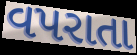
વપરાતા